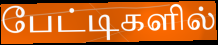
பேட்டிகளில்